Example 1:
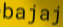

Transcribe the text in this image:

bajaj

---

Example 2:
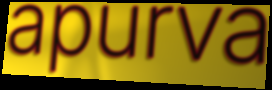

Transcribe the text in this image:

apurva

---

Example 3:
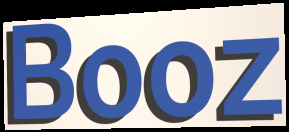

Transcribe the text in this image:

Booz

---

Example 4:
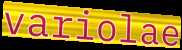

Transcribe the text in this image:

variolae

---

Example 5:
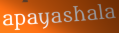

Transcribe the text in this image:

apayashala